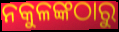
ନକୁଳଙ୍କଠାରୁ